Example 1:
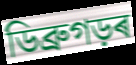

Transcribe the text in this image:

ডিব্ৰুগড়ৰ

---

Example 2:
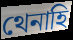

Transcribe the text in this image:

থেনাহি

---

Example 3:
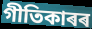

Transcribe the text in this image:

গীতিকাৰৰ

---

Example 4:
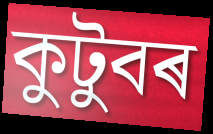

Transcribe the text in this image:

কুটুবৰ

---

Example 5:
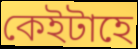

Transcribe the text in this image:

কেইটাহে